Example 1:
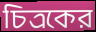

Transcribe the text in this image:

চিত্রকের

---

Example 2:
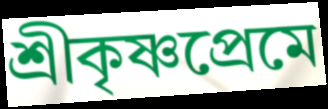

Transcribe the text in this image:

শ্রীকৃষ্ণপ্রেমে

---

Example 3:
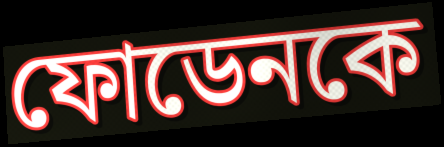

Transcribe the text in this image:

ফোডেনকে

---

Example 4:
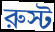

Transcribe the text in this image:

রুস্ট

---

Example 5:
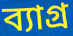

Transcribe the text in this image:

ব্যাগ্র